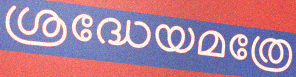
ശ്രദ്ധേയമത്രേ